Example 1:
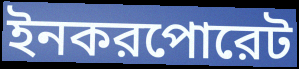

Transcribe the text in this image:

ইনকরপোরেট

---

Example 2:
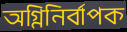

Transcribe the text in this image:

অগ্নিনির্বাপক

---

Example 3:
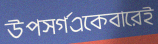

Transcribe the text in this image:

উপসর্গএকেবারেই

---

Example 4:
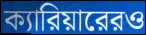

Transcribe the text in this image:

ক্যারিয়ারেরও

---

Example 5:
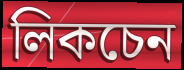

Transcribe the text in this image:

লিকচেন